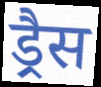
ड्रैस